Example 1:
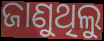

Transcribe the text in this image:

ଜାଣୁଥିଲୁ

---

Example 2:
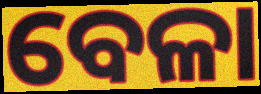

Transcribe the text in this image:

ବେଳା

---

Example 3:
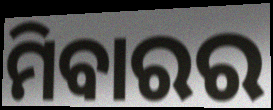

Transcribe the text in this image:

ମିବାରର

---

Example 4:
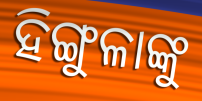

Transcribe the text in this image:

ହିଙ୍ଗୁଳାଙ୍କୁ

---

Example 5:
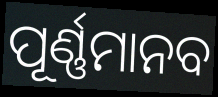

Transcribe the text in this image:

ପୂର୍ଣ୍ଣମାନବ